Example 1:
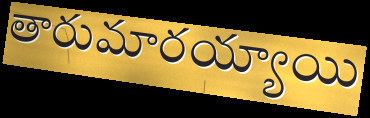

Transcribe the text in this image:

తారుమారయ్యాయి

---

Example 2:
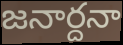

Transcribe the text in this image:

జనార్దనా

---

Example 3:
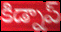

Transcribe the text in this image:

కిడ్నాప్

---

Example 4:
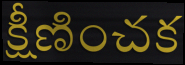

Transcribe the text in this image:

క్షీణించక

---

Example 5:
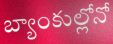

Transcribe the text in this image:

బ్యాంకుల్లోనో